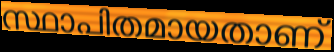
സ്ഥാപിതമായതാണ്